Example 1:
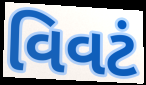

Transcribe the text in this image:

વિવટં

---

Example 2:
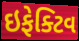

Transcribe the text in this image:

ઇફેક્ટિવ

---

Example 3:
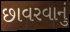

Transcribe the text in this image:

છાવરવાનું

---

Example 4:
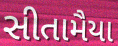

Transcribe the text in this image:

સીતામૈયા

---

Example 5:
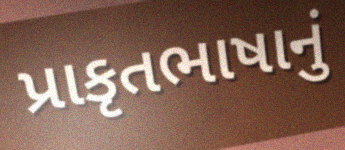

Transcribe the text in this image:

પ્રાકૃતભાષાનું